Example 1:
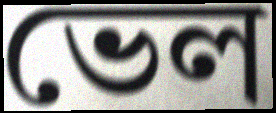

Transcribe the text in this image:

ভেল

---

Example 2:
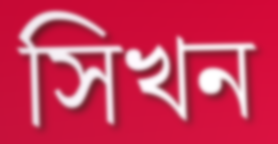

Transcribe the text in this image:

সিখন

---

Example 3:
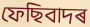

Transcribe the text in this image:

ফেছিবাদৰ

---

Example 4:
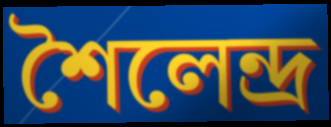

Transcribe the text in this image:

শৈলেন্দ্ৰ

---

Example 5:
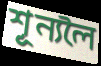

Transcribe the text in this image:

শূন্যলৈ